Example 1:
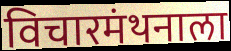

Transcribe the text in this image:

विचारमंथनाला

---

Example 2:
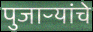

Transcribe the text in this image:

पुजाऱ्यांचे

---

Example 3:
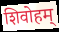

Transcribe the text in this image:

शिवोहम्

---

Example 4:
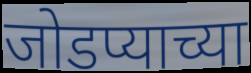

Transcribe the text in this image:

जोडप्याच्या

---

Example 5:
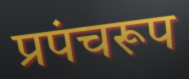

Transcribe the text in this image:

प्रपंचरूप